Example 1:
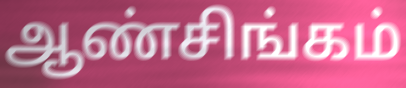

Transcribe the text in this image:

ஆண்சிங்கம்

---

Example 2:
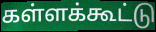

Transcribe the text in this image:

கள்ளக்கூட்டு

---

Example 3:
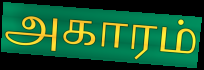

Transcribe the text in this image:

அகாரம்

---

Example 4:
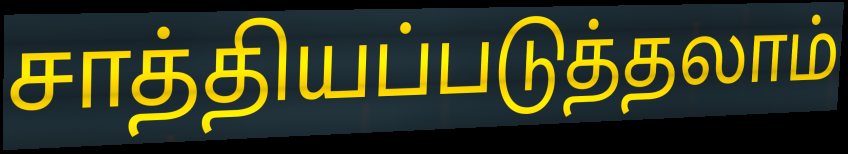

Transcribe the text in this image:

சாத்தியப்படுத்தலாம்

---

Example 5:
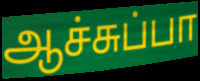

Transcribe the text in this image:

ஆச்சுப்பா